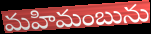
మహిమంబును